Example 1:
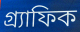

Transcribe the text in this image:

গ্র্যাফিক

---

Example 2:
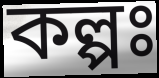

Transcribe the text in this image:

কল্পঃ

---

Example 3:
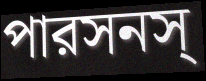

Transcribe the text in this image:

পারসনস্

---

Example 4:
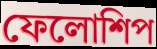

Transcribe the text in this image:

ফেলোশিপ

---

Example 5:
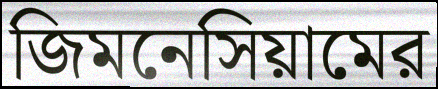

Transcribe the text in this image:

জিমনেসিয়ামের